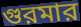
গুরমার